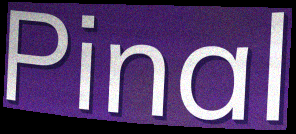
Pinal